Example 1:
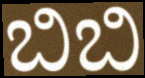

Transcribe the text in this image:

ಬಿಬಿ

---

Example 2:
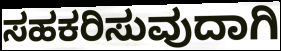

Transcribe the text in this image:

ಸಹಕರಿಸುವುದಾಗಿ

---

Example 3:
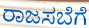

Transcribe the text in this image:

ರಾಜಸಬೆಗೆ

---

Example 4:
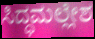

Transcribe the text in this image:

ಸಿದ್ಧಮಲ್ಲೇಶ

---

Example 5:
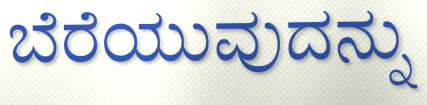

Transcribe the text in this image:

ಬೆರೆಯುವುದನ್ನು